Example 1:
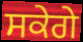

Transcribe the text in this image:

ਸਕੇਗੇ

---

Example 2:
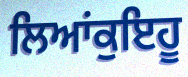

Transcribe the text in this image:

ਲਿਆਂਕੁਇਹੂ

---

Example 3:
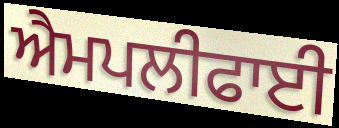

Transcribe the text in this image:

ਐਮਪਲੀਫਾਈ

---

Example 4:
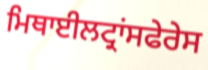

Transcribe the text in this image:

ਮਿਥਾਈਲਟ੍ਰਾਂਸਫੇਰੇਸ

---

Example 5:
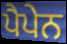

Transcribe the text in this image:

ਪੈਪੇਨ